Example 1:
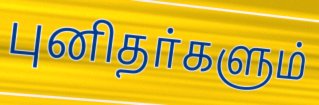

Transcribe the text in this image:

புனிதர்களும்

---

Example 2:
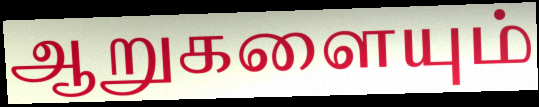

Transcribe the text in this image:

ஆறுகளையும்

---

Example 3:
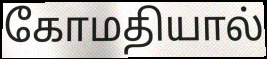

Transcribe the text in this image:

கோமதியால்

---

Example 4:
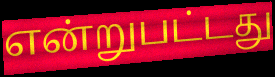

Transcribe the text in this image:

என்றுபட்டது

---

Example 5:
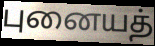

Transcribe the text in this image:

புனையத்